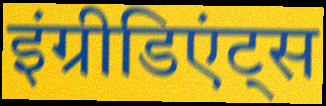
इंग्रीडिएंट्स